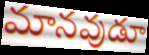
మానవుడూ